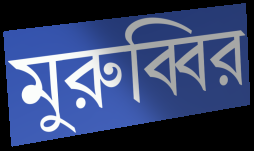
মুরুব্বির